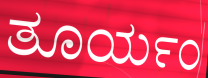
ತೂರ್ಯಂ